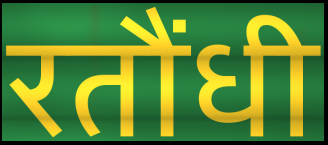
रतौंधी